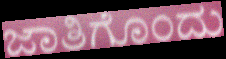
ಜಾತಿಗೊಂದು